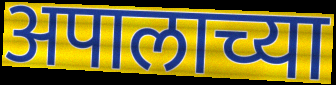
अपालाच्या